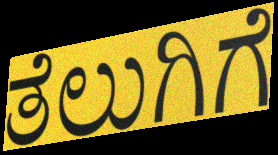
ತೆಲುಗಿಗೆ